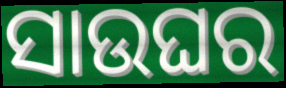
ସାଉଘର